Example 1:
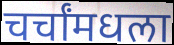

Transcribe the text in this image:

चर्चांमधला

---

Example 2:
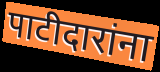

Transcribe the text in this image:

पाटीदारांना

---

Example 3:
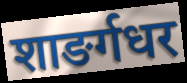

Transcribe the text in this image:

शाङर्गधर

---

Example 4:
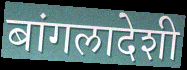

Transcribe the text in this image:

बांगलादेशी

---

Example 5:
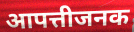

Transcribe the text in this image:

आपत्तीजनक